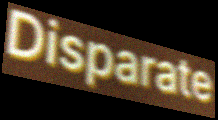
Disparate